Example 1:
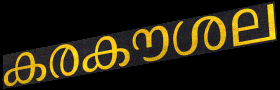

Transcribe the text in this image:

കരകൗശല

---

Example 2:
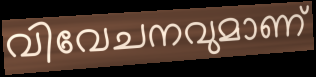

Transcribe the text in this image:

വിവേചനവുമാണ്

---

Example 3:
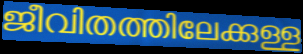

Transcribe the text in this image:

ജീവിതത്തിലേക്കുള്ള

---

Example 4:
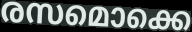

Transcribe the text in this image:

രസമൊക്കെ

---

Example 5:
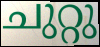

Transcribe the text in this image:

ചുറ്റു